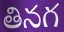
తినగ